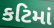
કટિમાં